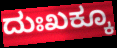
ದುಃಖಕ್ಕೂ